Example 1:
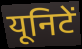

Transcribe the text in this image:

यूनिटें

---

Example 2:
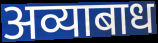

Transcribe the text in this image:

अव्याबाध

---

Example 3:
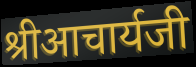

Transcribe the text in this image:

श्रीआचार्यजी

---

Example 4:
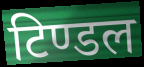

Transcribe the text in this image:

टिण्डल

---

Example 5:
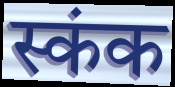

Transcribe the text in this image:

स्कंक